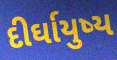
દીર્ઘાયુષ્ય